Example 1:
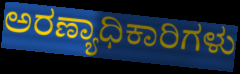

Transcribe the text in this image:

ಅರಣ್ಯಾಧಿಕಾರಿಗಳು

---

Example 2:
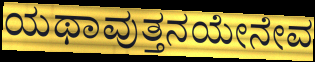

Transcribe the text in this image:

ಯಥಾವುತ್ತನಯೇನೇವ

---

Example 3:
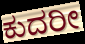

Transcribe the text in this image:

ಕುದರೀ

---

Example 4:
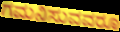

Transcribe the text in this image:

ಗಮನಿಸುವವರೂ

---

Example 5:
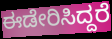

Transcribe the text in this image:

ಈಡೇರಿಸಿದ್ದರೆ